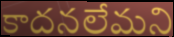
కాదనలేమని